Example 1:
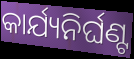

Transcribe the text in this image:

କାର୍ଯ୍ୟନିର୍ଘଣ୍ଟ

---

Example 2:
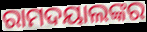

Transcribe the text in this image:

ରାମଦୟାଲଙ୍କର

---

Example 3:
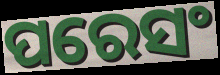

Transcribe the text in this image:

ପରେସଂ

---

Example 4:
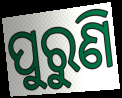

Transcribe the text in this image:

ପୁରୁଣି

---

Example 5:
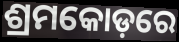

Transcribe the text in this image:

ଶ୍ରମକୋଡ଼ରେ